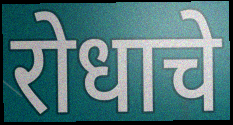
रोधाचे